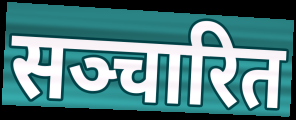
सञ्चारित